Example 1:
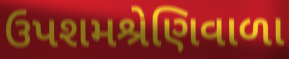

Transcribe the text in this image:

ઉપશમશ્રેણિવાળા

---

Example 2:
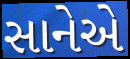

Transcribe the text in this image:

સાનેએ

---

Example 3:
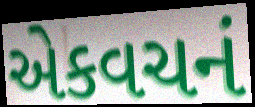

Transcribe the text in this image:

એકવચનં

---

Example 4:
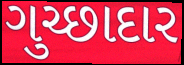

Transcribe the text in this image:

ગુચ્છાદાર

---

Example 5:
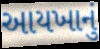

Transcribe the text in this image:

આયખાનું